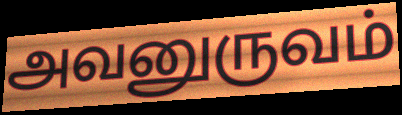
அவனுருவம்